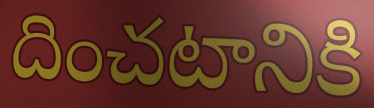
దించటానికి